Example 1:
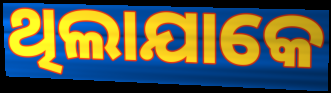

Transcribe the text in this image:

ଥିଲାଯାକେ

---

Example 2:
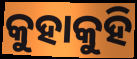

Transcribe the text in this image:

କୁହାକୁହି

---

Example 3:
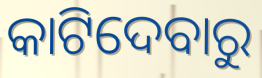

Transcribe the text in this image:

କାଟିଦେବାରୁ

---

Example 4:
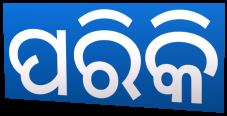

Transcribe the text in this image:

ପରିକି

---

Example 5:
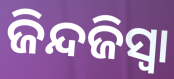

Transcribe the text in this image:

ଜିନ୍ଦଜିସ୍ୱା